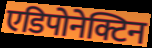
एडिपोनेक्टिन